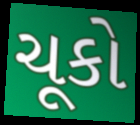
ચૂકો